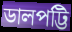
ডালপট্টি